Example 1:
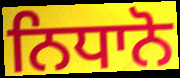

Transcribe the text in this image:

ਨਿਧਾਨੋ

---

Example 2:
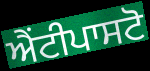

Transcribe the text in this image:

ਐਂਟੀਪਾਸਟੋ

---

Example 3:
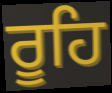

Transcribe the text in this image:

ਰੂਹਿ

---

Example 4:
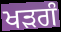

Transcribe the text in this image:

ਖੜਗੰ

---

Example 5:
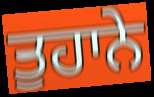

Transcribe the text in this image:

ਤੁਹਾਨੇ